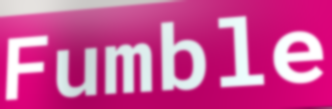
Fumble